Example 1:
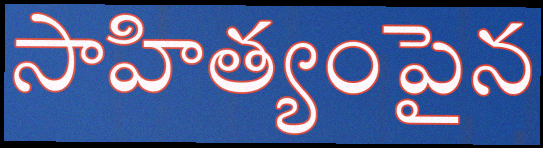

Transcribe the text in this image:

సాహిత్యంపైన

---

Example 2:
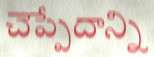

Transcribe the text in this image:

చెప్పేదాన్ని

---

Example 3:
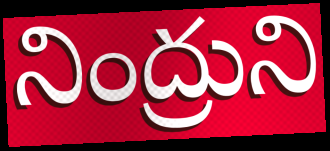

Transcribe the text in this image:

నింద్రుని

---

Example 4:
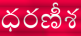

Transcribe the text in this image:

ధరణీశ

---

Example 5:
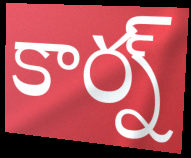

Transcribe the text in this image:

కార్న్